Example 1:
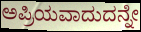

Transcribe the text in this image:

ಅಪ್ರಿಯವಾದುದನ್ನೇ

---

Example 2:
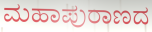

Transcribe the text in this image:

ಮಹಾಪುರಾಣದ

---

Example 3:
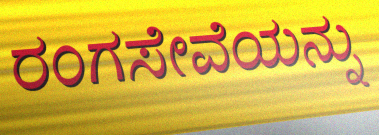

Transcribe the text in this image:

ರಂಗಸೇವೆಯನ್ನು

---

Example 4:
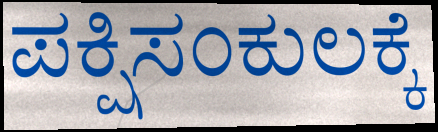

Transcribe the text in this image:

ಪಕ್ಷಿಸಂಕುಲಕ್ಕೆ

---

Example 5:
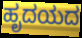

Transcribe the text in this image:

ಹೃದಯದ